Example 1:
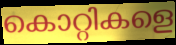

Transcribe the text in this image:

കൊറ്റികളെ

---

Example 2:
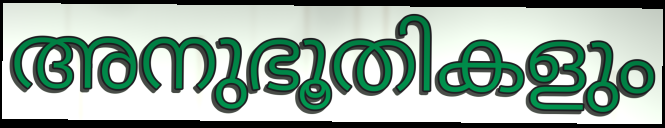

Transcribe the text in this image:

അനുഭൂതികളും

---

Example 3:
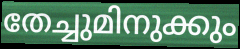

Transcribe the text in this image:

തേച്ചുമിനുക്കും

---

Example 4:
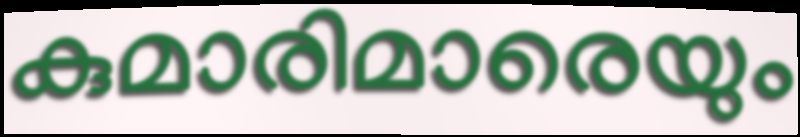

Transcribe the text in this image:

കുമാരിമാരെയും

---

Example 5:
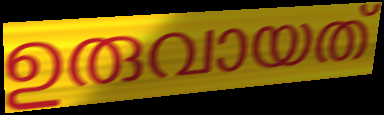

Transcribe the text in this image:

ഉരുവായത്